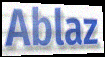
Ablaz